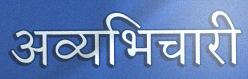
अव्यभिचारी